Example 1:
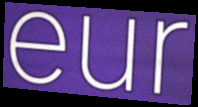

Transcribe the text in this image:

eur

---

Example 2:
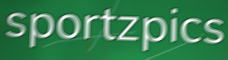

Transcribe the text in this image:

sportzpics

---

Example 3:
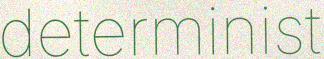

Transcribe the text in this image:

determinist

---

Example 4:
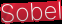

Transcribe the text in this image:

Sobel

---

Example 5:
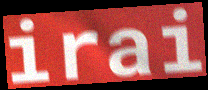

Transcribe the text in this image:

irai